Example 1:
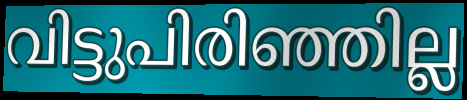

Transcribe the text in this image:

വിട്ടുപിരിഞ്ഞില്ല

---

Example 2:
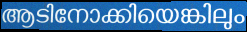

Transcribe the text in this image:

ആടിനോക്കിയെങ്കിലും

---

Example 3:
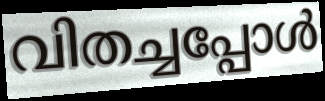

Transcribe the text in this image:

വിതച്ചപ്പോൾ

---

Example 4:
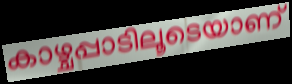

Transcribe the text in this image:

കാഴ്ചപ്പാടിലൂടെയാണ്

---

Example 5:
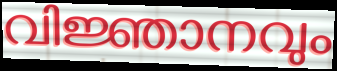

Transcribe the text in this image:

വിജ്ഞാനവും